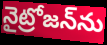
నైట్రోజన్‌ను